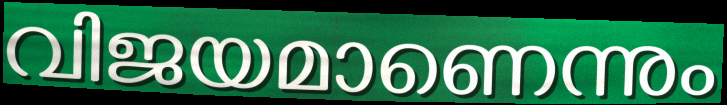
വിജയമാണെന്നും